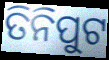
ତିନିପୁଟ